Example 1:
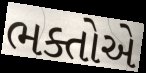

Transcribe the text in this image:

ભક્તોએ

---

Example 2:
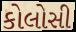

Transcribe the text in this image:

કોલોસી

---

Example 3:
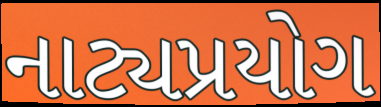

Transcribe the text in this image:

નાટ્યપ્રયોગ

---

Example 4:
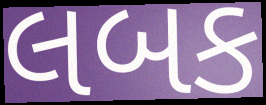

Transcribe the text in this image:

લબક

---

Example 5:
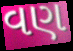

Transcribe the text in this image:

વણ